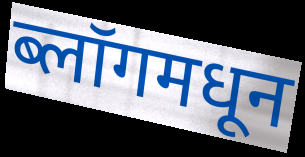
ब्लॉगमधून